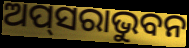
ଅପ୍‍ସରାଭୁବନ